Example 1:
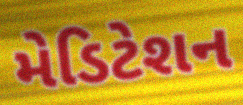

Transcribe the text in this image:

મેડિટેશન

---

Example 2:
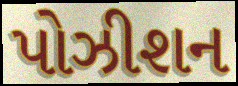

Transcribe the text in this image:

પોઝીશન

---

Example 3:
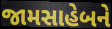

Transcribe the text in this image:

જામસાહેબને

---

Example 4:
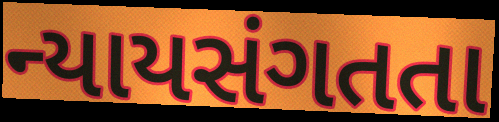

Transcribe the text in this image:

ન્યાયસંગતતા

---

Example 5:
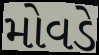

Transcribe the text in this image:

મોવડે